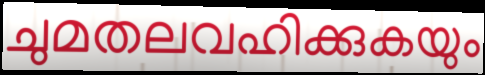
ചുമതലവഹിക്കുകയും